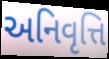
અનિવૃત્તિ